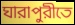
ঘারাপুরীতে